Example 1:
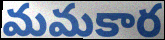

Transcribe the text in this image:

మమకార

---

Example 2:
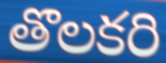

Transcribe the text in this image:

తొలకరి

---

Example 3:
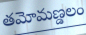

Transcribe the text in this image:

తమోమణ్డలం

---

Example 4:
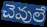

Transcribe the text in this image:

చెవులే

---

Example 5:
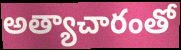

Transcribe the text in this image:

అత్యాచారంతో